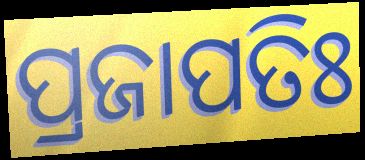
ପ୍ରଜାପତିଃ